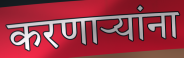
करणार्‍यांना